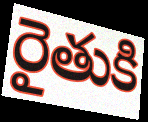
రైతుకి